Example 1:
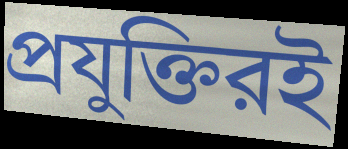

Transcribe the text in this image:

প্রযুক্তিরই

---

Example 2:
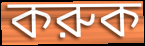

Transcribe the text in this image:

করুক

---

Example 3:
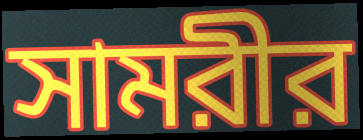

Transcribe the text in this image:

সামরীর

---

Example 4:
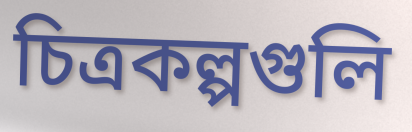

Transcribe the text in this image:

চিত্রকল্পগুলি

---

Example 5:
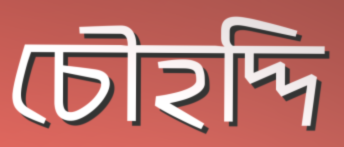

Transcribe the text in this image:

চৌহদ্দি